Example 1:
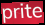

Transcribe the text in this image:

prite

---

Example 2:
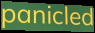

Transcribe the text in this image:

panicled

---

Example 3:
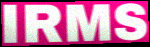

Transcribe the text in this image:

IRMS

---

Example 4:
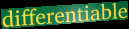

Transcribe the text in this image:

differentiable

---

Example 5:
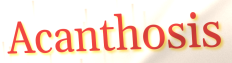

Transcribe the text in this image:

Acanthosis